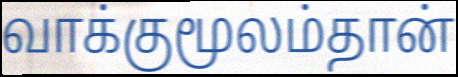
வாக்குமூலம்தான்